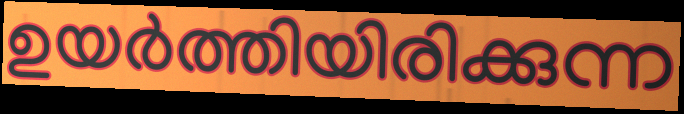
ഉയർത്തിയിരിക്കുന്ന